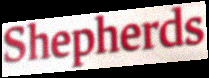
Shepherds